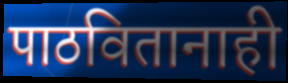
पाठवितानाही